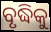
ବୃଦ୍ଧିକୁ